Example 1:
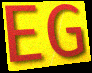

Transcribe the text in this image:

EG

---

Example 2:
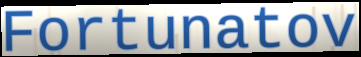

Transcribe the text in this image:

Fortunatov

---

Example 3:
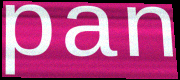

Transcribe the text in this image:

pan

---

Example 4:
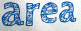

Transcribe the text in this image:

area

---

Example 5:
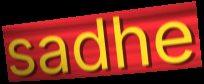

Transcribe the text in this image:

sadhe